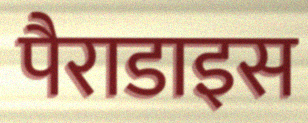
पैराडाइस